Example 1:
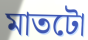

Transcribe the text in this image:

মাতটো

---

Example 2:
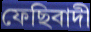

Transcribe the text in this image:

ফেছিবাদী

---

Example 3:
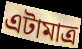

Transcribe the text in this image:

এটামাত্ৰ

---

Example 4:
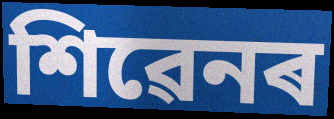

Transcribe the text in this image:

শিৱেনৰ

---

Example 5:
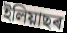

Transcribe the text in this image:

ইলিয়াছৰ